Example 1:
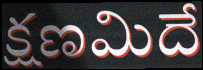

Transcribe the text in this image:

క్షణమిదే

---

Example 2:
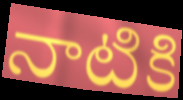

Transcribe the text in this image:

నాటికి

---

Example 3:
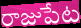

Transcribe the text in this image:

రాజుపేట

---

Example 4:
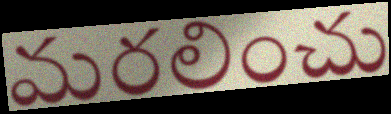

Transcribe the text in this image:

మరలించు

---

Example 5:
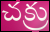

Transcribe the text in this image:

చక్రు